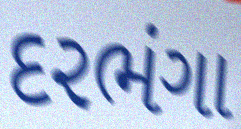
દરભંગા